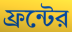
ফ্রন্টের